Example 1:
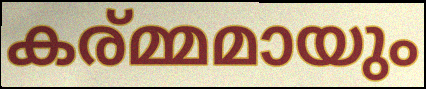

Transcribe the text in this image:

കര്മ്മമായും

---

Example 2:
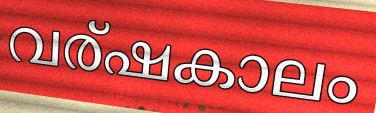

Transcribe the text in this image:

വര്ഷകാലം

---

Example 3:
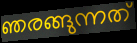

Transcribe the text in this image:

ഞരങ്ങുന്നത്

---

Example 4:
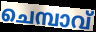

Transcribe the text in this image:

ചെമ്പാവ്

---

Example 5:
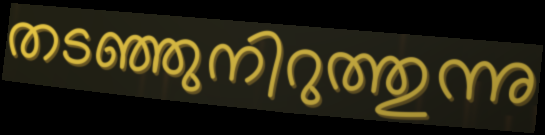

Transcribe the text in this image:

തടഞ്ഞുനിറുത്തുന്നു